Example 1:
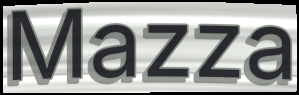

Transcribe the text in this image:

Mazza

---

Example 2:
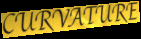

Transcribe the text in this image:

CURVATURE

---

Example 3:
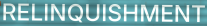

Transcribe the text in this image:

RELINQUISHMENT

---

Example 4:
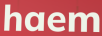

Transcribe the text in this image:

haem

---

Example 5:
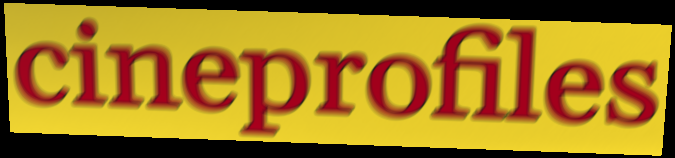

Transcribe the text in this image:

cineprofiles